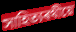
সাহিত্যৰথীয়ে